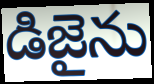
డిజైను